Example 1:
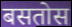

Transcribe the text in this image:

बसतोस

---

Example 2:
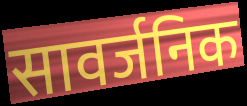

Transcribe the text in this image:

सावर्जनिक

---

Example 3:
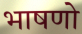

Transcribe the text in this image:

भाषणो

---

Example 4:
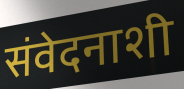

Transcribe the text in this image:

संवेदनाशी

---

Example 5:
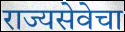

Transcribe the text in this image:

राज्यसेवेचा